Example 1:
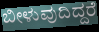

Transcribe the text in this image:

ಬೀಳುವುದಿದ್ದರೆ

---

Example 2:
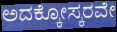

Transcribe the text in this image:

ಅದಕ್ಕೋಸ್ಕರವೇ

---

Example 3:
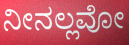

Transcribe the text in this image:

ನೀನಲ್ಲವೋ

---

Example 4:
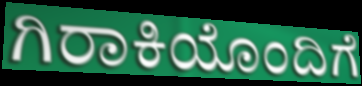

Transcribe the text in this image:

ಗಿರಾಕಿಯೊಂದಿಗೆ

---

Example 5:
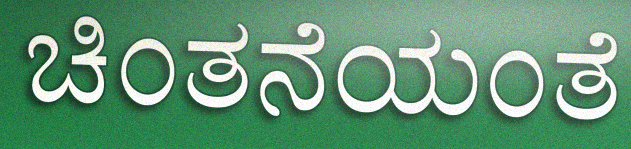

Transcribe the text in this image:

ಚಿಂತನೆಯಂತೆ